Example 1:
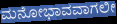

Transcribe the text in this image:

ಮನೋಭಾವವಾಗಲೀ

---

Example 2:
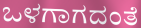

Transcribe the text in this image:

ಒಳಗಾಗದಂತೆ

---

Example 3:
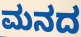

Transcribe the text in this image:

ಮನದ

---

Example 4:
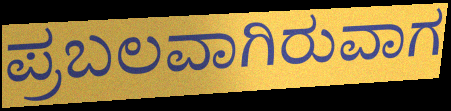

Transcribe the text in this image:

ಪ್ರಬಲವಾಗಿರುವಾಗ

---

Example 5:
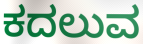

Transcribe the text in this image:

ಕದಲುವ